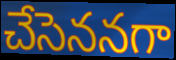
చేసెననగా